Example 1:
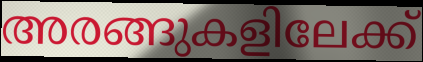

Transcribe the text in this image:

അരങ്ങുകളിലേക്ക്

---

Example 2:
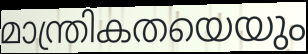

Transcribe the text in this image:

മാന്ത്രികതയെയും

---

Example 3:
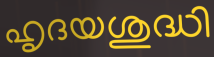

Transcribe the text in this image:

ഹൃദയശുദ്ധി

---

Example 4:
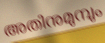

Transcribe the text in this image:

അതിനുമുമ്പും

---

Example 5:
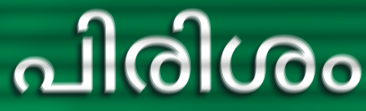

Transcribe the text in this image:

പിരിശം